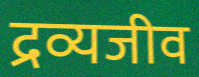
द्रव्यजीव